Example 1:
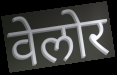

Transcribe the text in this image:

वेलोर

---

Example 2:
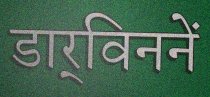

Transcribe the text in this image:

डार्विननें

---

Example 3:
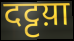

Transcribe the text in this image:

दट्टय़ा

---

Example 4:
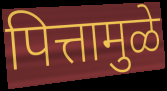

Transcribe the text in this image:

पित्तामुळे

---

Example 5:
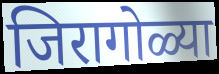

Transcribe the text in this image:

जिरागोळ्या